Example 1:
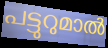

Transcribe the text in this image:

പട്ടുറുമാൽ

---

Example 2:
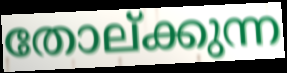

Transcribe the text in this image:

തോല്ക്കുന്ന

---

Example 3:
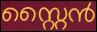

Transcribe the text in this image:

സ്റ്റൈൻ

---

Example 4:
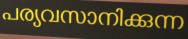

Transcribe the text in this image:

പര്യവസാനിക്കുന്ന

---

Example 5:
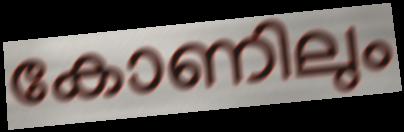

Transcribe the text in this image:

കോണിലും